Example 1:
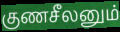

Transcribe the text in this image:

குணசீலனும்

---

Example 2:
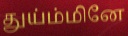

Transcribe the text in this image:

துய்ம்மினே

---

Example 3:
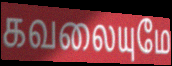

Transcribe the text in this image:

கவலையுமே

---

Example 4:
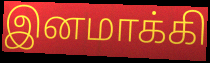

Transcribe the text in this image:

இனமாக்கி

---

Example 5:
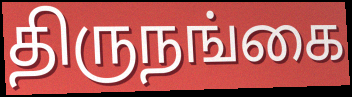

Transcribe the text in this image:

திருநங்கை